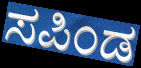
ಸಪಿಂಡ